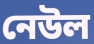
নেউল